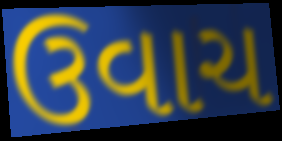
ઉવાચ